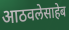
आठवलेसाहेब